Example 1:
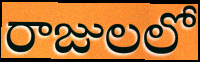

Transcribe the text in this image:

రాజులలో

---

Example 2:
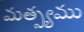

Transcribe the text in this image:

మత్స్యము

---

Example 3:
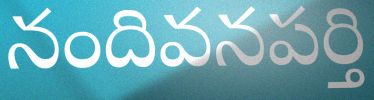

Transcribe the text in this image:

నందివనపర్తి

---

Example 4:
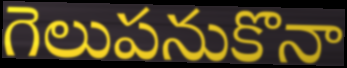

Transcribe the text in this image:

గెలుపనుకొనా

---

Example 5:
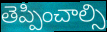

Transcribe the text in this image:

తెప్పించాల్సి